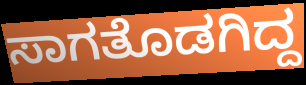
ಸಾಗತೊಡಗಿದ್ದ